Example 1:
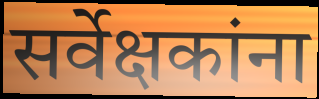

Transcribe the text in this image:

सर्वेक्षकांना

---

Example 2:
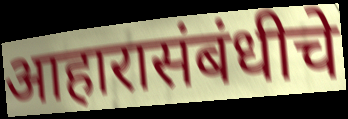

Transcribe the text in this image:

आहारासंबंधीचे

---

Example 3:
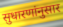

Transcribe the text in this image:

सुधारणांनुसार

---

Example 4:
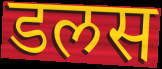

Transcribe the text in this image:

डलस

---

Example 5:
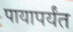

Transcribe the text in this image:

पायापर्यंत